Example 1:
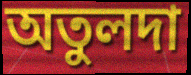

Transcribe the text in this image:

অতুলদা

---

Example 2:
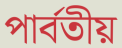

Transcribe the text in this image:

পার্বতীয়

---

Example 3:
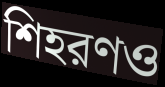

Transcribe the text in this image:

শিহরণও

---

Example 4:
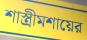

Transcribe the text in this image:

শাস্ত্রীমশায়ের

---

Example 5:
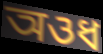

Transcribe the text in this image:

অওধ